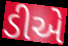
ડીએ